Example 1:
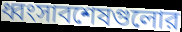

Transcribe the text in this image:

ধ্বংসাবশেষগুলোর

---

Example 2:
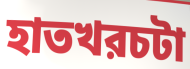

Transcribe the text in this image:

হাতখরচটা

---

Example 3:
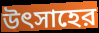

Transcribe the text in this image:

উৎসাহের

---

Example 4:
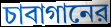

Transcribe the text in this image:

চাবাগানের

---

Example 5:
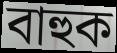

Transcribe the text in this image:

বাহুক